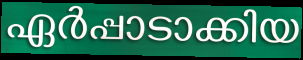
ഏർപ്പാടാക്കിയ